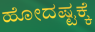
ಹೋದಷ್ಟಕ್ಕೆ